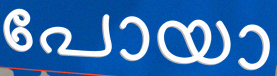
പോയാ